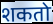
शकतो